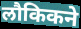
लौकिकने